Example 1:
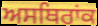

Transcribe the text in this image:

ਅਸਥਿਰਾਂਕ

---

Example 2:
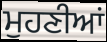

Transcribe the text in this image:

ਮੁਹਣੀਆਂ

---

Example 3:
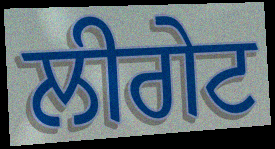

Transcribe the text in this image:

ਲੀਗੇਟ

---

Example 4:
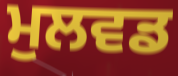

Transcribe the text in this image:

ਮੁਲਵਡ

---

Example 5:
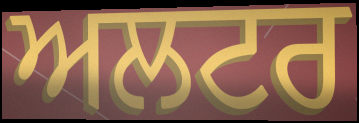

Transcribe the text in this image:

ਅਲਟਰ